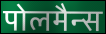
पोलमैन्स